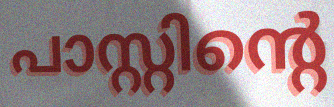
പാസ്റ്റിന്റെ